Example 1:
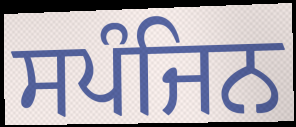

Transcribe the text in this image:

ਸਪੰਜਿਨ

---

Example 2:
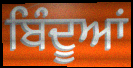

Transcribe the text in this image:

ਬਿੰਦੂਆਂ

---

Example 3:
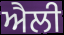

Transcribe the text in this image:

ਐਲੀ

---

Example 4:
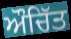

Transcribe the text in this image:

ਔਚਿੱਤ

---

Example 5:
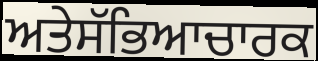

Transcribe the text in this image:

ਅਤੇਸੱਭਿਆਚਾਰਕ